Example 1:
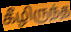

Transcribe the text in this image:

கீழிருந்த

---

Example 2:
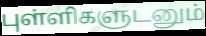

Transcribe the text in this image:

புள்ளிகளுடனும்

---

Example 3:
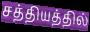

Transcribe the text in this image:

சத்தியத்தில்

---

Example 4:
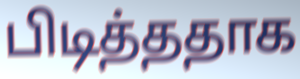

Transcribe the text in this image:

பிடித்ததாக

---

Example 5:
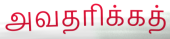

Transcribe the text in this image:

அவதரிக்கத்